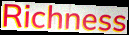
Richness